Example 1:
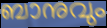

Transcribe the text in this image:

ബാനുവും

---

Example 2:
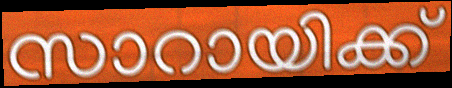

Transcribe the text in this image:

സാറായിക്ക്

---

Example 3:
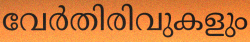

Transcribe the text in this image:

വേർതിരിവുകളും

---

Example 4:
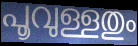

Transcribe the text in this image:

പൂവുള്ളതും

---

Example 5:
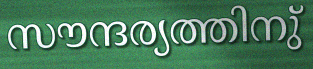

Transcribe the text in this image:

സൗന്ദര്യത്തിനു്